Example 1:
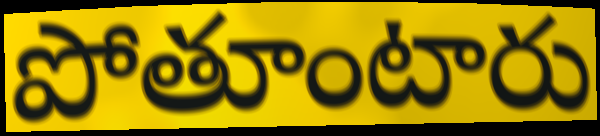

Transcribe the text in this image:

పోతూంటారు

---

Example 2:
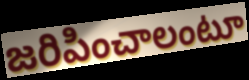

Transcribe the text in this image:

జరిపించాలంటూ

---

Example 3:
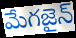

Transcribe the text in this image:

మేగజైన్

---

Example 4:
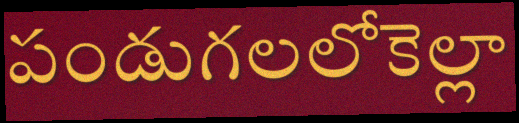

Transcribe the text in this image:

పండుగలలోకెల్లా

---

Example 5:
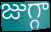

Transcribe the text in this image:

జుగ్గా